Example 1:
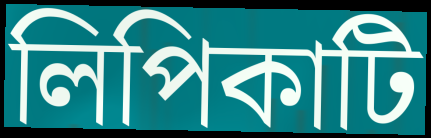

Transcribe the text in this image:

লিপিকাটি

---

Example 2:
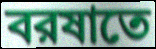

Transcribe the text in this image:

বরষাতে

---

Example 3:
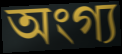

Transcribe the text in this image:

অংগ্য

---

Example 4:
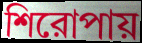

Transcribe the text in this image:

শিরোপায়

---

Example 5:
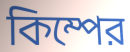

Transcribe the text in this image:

কিম্পের